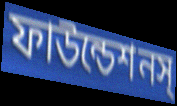
ফাউন্ডেশনস্